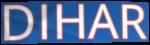
DIHAR